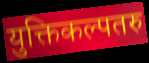
युक्तिकल्पतरु